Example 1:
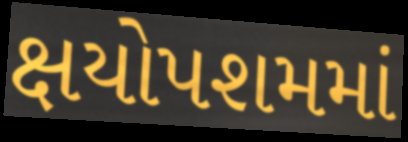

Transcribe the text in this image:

ક્ષયોપશમમાં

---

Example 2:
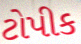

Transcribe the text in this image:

ટોપીક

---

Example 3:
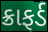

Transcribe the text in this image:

ક્રાફર્ડ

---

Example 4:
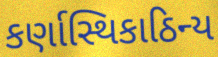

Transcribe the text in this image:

કર્ણાસ્થિકાઠિન્ય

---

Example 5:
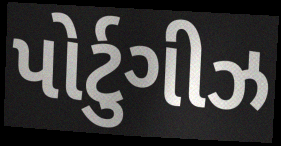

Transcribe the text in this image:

પોર્ટુગીઝ